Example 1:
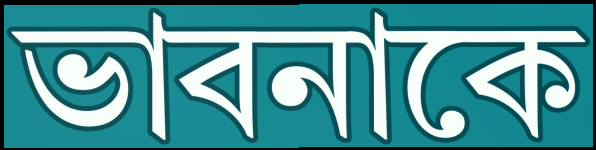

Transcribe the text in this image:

ভাবনাকে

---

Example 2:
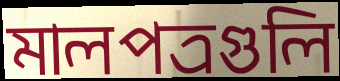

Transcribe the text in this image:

মালপত্রগুলি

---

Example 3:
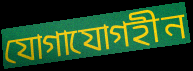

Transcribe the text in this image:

যোগাযোগহীন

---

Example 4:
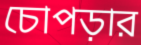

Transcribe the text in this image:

চোপড়ার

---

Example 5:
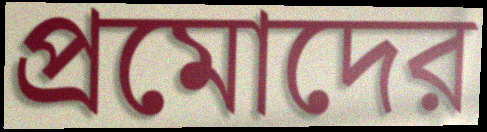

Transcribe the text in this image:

প্রমোদের